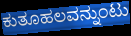
ಕುತೂಹಲವನ್ನುಂಟು